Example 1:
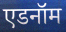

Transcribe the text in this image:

एडनॉम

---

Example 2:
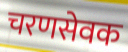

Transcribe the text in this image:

चरणसेवक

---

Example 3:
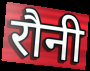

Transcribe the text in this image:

रौनी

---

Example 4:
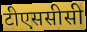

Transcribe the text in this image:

टीएससीसी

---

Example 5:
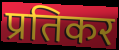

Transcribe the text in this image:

प्रतिकर